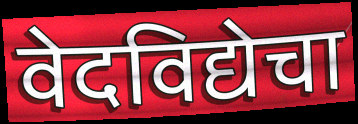
वेदविद्येचा